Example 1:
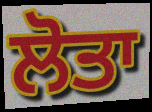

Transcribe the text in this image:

ਲੋਤਾ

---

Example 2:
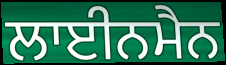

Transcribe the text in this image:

ਲਾਈਨਮੈਨ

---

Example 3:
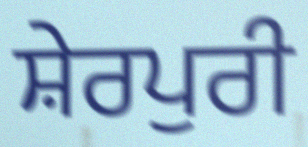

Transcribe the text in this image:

ਸ਼ੇਰਪੁਰੀ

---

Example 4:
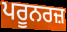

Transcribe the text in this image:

ਪਰੂਨਰਜ਼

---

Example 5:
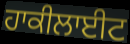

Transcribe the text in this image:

ਹਾਕੀਲਾਈਟ